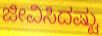
ಜೀವಿಸಿದಷ್ಟು